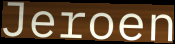
Jeroen